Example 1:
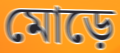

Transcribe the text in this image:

মোড়ে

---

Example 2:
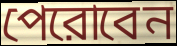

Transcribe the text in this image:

পেরোবেন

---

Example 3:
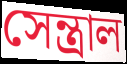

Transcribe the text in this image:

সেন্ত্রাল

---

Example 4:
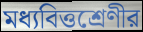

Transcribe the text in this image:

মধ্যবিত্তশ্রেণীর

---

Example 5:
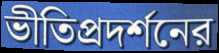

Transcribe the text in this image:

ভীতিপ্রদর্শনের